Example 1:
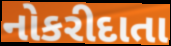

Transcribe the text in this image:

નોકરીદાતા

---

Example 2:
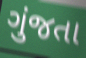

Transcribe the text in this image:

ગુંજતા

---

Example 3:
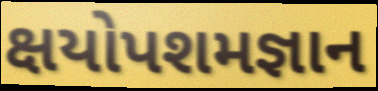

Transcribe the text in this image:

ક્ષયોપશમજ્ઞાન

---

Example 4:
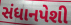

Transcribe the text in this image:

સંધાનપેશી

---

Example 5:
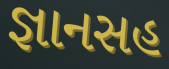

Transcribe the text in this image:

જ્ઞાનસહ